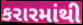
કરારમાંથી